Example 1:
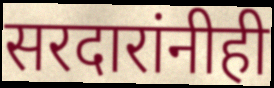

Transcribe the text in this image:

सरदारांनीही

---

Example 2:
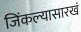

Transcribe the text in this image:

जिंकल्यासारखं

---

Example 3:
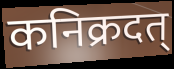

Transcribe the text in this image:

कनिक्रदत्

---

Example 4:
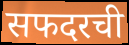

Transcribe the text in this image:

सफदरची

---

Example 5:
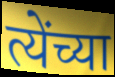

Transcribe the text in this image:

त्येंच्या